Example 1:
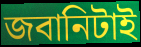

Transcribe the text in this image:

জবানিটাই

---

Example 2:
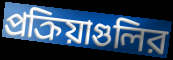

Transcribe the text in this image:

প্রক্রিয়াগুলির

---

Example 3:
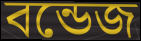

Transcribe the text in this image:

বন্ডেজ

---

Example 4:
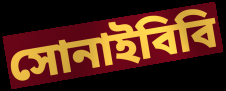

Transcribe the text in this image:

সোনাইবিবি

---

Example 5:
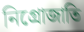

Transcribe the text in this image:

নিগ্রোজাতি